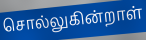
சொல்லுகின்றாள்